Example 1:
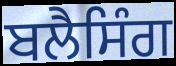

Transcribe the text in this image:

ਬਲੈਸਿੰਗ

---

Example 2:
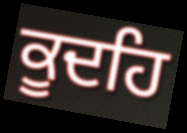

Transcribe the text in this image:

ਕੂਦਹਿ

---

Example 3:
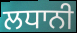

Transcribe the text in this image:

ਲਧਾਨੀ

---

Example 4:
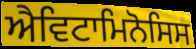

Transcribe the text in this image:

ਐਵਿਟਾਮਿਨੋਸਿਸ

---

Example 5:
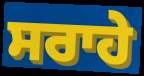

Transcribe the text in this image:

ਸਰਾਹੇ